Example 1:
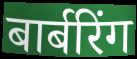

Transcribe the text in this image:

बार्बरिंग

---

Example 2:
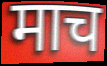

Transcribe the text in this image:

माच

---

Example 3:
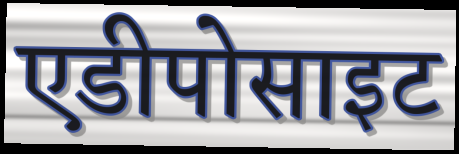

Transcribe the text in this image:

एडीपोसाइट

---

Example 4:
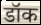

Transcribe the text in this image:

डॉक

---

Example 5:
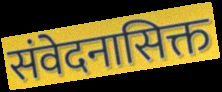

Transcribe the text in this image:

संवेदनासिक्त